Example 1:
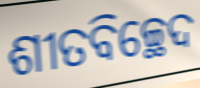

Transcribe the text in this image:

ଶୀତବିଚ୍ଛେଦ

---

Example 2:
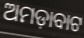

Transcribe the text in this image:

ଅମଡ଼ାବାଟ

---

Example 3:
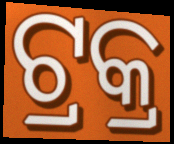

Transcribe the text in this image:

ଟ୍ରକ୍ର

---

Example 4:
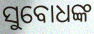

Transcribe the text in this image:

ସୁବୋଧଙ୍କ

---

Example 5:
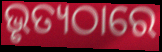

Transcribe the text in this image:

ଭୃତ୍ୟଠାରେ